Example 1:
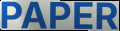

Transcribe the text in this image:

PAPER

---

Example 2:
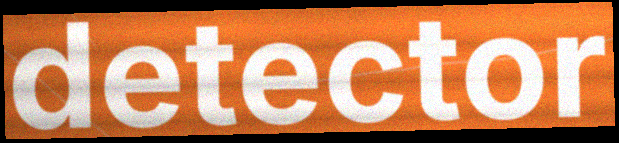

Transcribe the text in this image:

detector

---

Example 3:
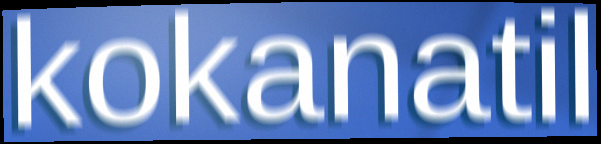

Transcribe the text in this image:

kokanatil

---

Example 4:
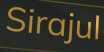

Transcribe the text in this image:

Sirajul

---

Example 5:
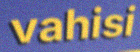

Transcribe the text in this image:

vahisi